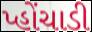
પ્હોંચાડી